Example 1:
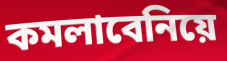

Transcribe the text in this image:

কমলাবেনিয়ে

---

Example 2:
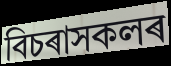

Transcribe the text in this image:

বিচৰাসকলৰ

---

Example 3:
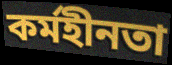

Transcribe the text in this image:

কৰ্মহীনতা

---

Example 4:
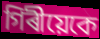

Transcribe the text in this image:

গিৰীয়েকে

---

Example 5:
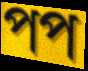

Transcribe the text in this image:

পপ